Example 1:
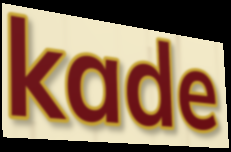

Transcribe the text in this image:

kade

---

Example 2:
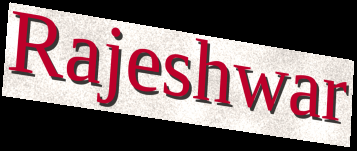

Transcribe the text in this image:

Rajeshwar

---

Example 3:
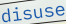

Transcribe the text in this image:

disuse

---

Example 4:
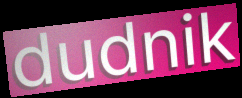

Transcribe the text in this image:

dudnik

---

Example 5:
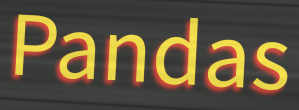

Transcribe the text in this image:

Pandas